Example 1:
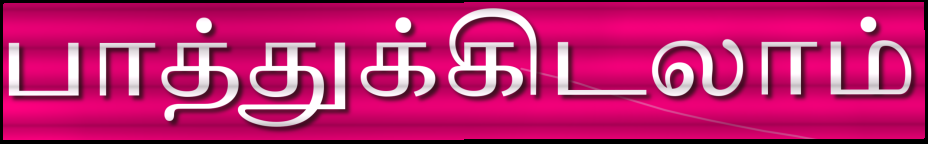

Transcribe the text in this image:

பாத்துக்கிடலாம்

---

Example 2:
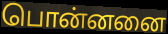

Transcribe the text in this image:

பொன்னனை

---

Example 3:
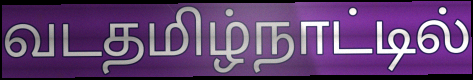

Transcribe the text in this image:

வடதமிழ்நாட்டில்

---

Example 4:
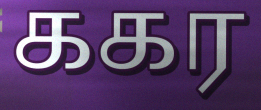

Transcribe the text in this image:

ககர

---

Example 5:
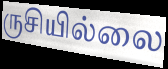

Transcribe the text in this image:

ருசியில்லை